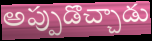
అప్పుడొచ్చాడు